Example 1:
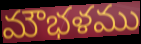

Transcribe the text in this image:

మౌభళము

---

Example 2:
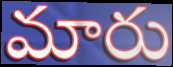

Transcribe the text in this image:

మారు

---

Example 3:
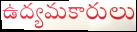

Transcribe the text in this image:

ఉద్యమకారులు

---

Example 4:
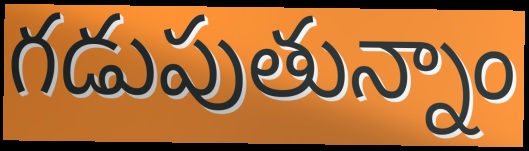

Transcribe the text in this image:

గడుపుతున్నాం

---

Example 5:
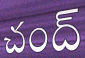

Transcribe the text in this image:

చంద్